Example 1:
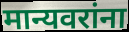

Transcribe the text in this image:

मान्यवरांना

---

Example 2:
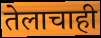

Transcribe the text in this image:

तेलाचाही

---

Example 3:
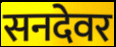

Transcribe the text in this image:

सनदेवर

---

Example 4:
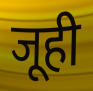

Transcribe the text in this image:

जूही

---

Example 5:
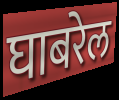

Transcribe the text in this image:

घाबरेल